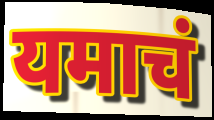
यमाचं